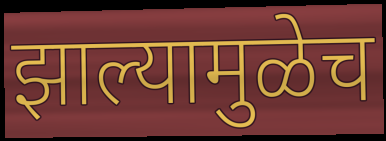
झाल्यामुळेच